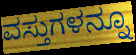
ವಸ್ತುಗಳನ್ನೂ